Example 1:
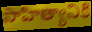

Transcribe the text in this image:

సాహిత్యానికి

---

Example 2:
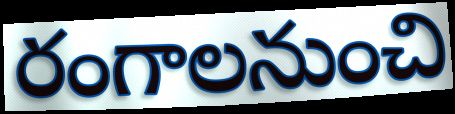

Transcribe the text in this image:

రంగాలనుంచి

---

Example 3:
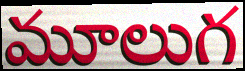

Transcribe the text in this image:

మూలుగ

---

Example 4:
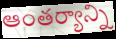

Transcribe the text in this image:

ఆంతర్యాన్ని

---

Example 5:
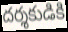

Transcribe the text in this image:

దర్శకుడికి